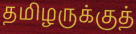
தமிழருக்குத்